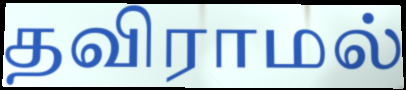
தவிராமல்